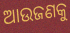
ଆଉଜଣକୁ